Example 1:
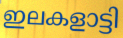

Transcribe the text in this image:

ഇലകളാട്ടി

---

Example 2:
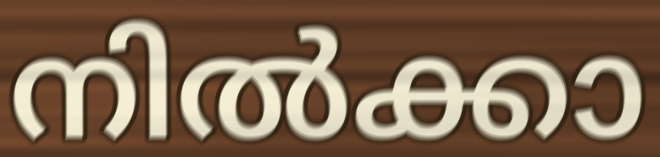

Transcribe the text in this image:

നിൽക്കാ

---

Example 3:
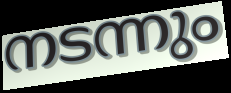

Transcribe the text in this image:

നടന്നും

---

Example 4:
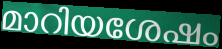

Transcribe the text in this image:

മാറിയശേഷം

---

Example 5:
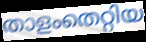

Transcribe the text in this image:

താളംതെറ്റിയ